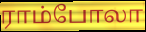
ராம்போலா